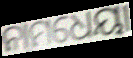
ନାମଧେୟା